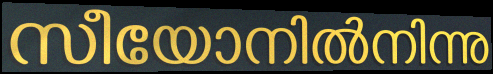
സീയോനിൽനിന്നു